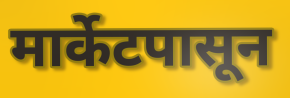
मार्केटपासून